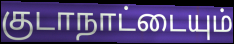
குடாநாட்டையும்